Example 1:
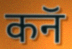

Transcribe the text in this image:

कनॅ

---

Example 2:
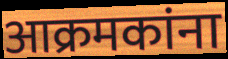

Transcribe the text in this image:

आक्रमकांना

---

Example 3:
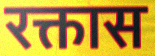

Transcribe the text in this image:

रक्तास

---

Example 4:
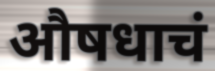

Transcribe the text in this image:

औषधाचं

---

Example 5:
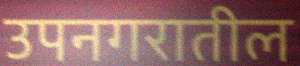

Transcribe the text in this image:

उपनगरातील